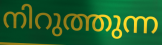
നിറുത്തുന്ന